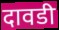
दावडी